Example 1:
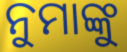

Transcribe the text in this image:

ନୁମାଙ୍କୁ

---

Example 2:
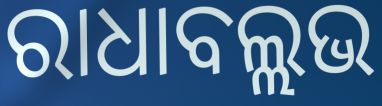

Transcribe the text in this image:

ରାଧାବଲ୍ଲଭ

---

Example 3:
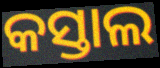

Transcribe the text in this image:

କସ୍ତାଲ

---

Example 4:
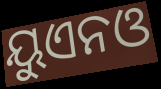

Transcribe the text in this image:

ୟୁଏନଓ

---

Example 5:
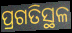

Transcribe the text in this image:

ପ୍ରଗତିସ୍ଥଳ